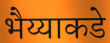
भैय्याकडे